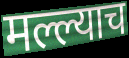
मल्ल्याच